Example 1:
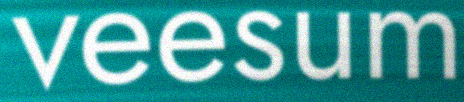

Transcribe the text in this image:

veesum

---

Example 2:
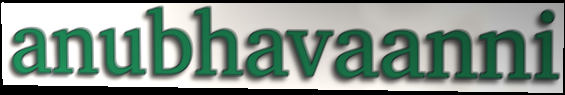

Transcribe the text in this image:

anubhavaanni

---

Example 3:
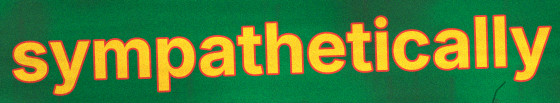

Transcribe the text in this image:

sympathetically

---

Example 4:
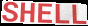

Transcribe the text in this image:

SHELL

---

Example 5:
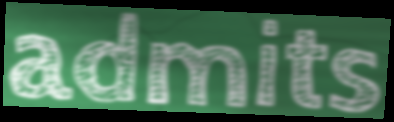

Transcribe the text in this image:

admits